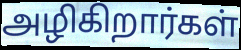
அழிகிறார்கள்